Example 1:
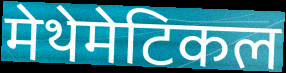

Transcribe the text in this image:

मेथेमेटिकल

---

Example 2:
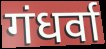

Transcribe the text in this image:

गंधर्वा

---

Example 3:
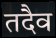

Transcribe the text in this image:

तदैव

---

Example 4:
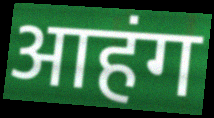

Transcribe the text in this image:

आहंग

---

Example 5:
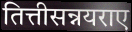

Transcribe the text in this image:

तित्तीसन्नयराए